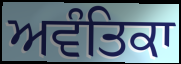
ਅਵੰਤਿਕਾ